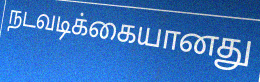
நடவடிக்கையானது